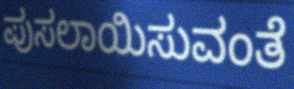
ಪುಸಲಾಯಿಸುವಂತೆ